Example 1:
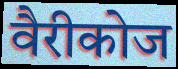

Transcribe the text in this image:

वैरीकोज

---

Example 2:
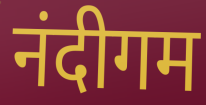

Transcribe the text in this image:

नंदीगम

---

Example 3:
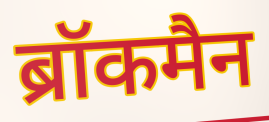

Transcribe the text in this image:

ब्रॉकमैन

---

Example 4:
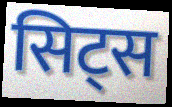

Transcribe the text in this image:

सिट्स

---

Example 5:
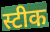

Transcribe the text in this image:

स्टीक